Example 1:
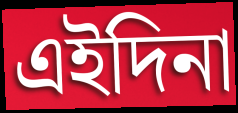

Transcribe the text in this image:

এইদিনা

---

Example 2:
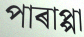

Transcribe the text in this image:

পাৰাপ্পা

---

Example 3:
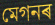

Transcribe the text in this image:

মেগনৰ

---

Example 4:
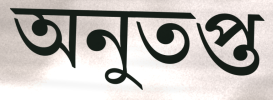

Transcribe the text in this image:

অনুতপ্ত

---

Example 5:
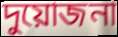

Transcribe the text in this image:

দুয়োজনা